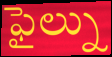
ఫైల్ను